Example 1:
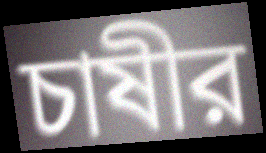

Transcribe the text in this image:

চাষীর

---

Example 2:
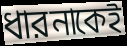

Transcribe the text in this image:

ধারনাকেই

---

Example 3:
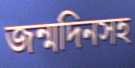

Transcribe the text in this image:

জন্মদিনসহ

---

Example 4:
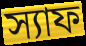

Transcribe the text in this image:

স্যাফ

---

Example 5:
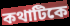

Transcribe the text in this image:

কথাটিকে